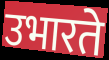
उभारते